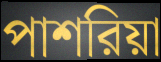
পাশরিয়া